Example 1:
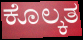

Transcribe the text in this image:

ಕೊಲ್ಕತ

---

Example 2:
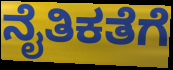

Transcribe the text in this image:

ನೈತಿಕತೆಗೆ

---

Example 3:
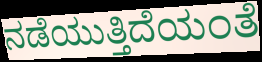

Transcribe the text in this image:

ನಡೆಯುತ್ತಿದೆಯಂತೆ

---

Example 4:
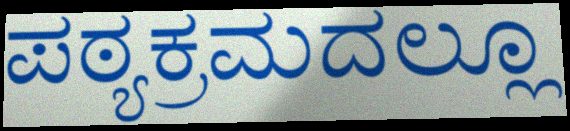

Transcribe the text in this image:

ಪಠ್ಯಕ್ರಮದಲ್ಲೂ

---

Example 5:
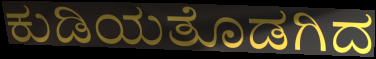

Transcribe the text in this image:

ಕುಡಿಯತೊಡಗಿದ